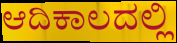
ಆದಿಕಾಲದಲ್ಲಿ